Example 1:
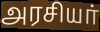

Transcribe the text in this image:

அரசியர்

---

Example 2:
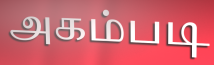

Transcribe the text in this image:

அகம்படி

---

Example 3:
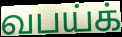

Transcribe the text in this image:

வபய்க்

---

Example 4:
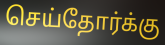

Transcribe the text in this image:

செய்தோர்க்கு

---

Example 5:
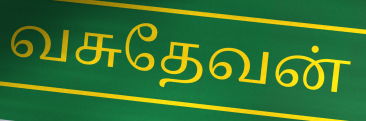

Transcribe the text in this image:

வசுதேவன்